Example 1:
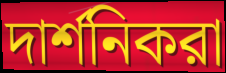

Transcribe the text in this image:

দার্শনিকরা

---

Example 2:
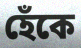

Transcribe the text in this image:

হেঁকে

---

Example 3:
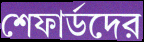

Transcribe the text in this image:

শেফার্ডদের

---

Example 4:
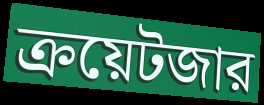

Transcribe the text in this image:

ক্রয়েটজার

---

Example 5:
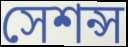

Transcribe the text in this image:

সেশন্স